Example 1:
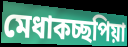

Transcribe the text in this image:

মেধাকচ্ছপিয়া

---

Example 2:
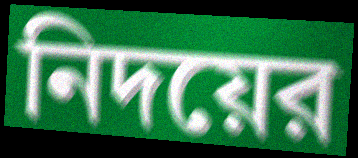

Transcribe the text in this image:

নিদয়ের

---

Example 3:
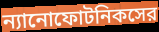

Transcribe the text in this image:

ন্যানোফোটনিকসের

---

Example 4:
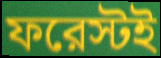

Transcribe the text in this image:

ফরেস্টই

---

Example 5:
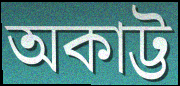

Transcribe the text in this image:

অকাট্ট